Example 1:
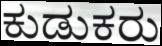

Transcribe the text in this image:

ಕುಡುಕರು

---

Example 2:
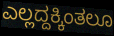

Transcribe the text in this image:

ಎಲ್ಲದ್ದಕ್ಕಿಂತಲೂ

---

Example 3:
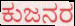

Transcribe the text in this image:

ಕುಜನರ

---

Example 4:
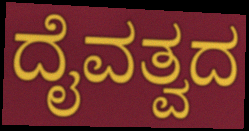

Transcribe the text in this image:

ದೈವತ್ವದ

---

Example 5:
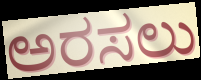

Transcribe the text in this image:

ಅರಸಲು